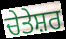
ਚੇਤੇਸ਼ਰ